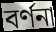
বৰ্ণনা